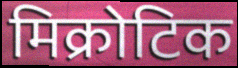
मिक्रोटिक